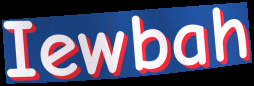
Iewbah